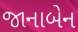
જાનાબેન